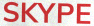
SKYPE